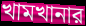
খামখানার